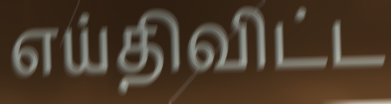
எய்திவிட்ட